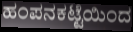
ಹಂಪನಕಟ್ಟೆಯಿಂದ